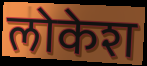
लोकेश